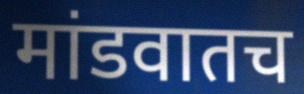
मांडवातच